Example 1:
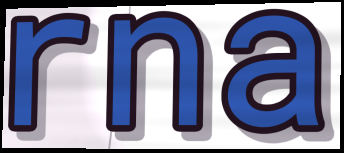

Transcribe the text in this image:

rna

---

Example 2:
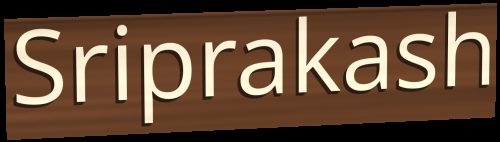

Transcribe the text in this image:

Sriprakash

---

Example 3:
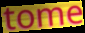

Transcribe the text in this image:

tome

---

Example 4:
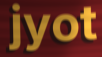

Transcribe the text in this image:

jyot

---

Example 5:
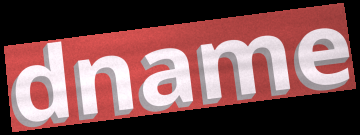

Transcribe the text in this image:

dname